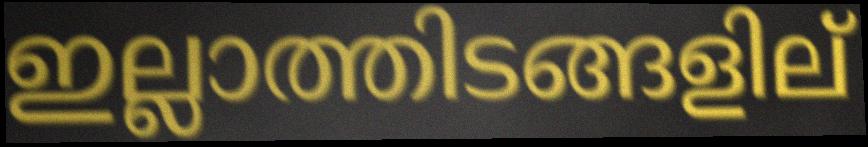
ഇല്ലാത്തിടങ്ങളില്